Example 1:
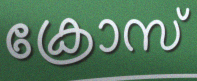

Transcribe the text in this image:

ക്രോസ്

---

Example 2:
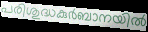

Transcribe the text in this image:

പരിശുദ്ധകുർബാനയിൽ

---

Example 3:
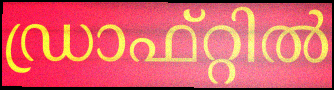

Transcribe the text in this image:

ഡ്രാഫ്റ്റിൽ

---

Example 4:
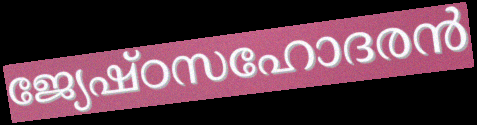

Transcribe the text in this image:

ജ്യേഷ്ഠസഹോദരൻ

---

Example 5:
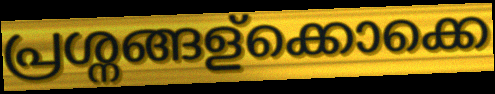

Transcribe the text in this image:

പ്രശ്നങ്ങള്ക്കൊക്കെ